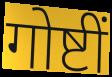
गोष्टीं